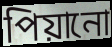
পিয়ানো